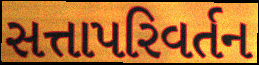
સત્તાપરિવર્તન